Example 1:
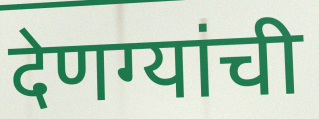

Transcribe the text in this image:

देणग्यांची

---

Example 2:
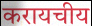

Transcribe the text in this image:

करायचीय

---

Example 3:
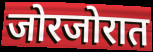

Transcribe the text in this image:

जोरजोरात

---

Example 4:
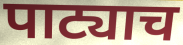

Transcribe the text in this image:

पाट्याच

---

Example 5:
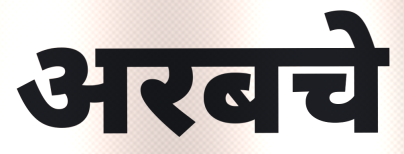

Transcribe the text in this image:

अरबचे